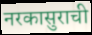
नरकासुराची